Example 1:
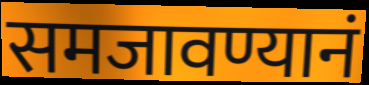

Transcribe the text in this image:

समजावण्यानं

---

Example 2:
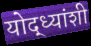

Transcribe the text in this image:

योद्ध्यांशी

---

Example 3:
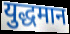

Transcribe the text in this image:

युद्धमान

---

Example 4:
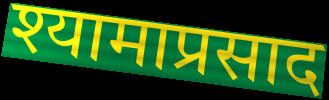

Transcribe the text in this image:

श्यामाप्रसाद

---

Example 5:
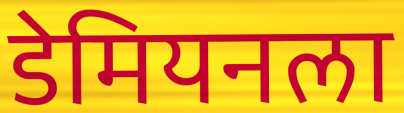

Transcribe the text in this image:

डेमियनला